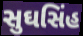
સુઘસિંહ